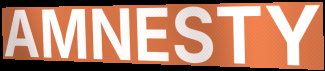
AMNESTY